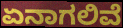
ಏನಾಗಲಿವೆ